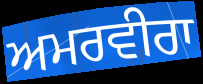
ਅਮਰਵੀਰਾ